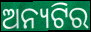
ଅନ୍ୟଟିର